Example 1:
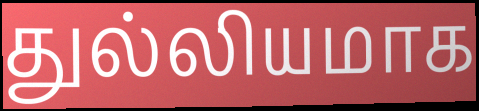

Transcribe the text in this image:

துல்லியமாக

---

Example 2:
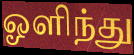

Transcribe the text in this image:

ஓளிந்து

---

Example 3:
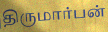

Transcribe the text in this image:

திருமார்பன்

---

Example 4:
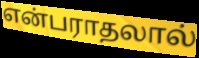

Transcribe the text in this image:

என்பராதலால்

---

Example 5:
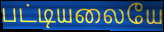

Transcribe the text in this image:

பட்டியலையே